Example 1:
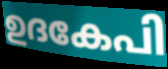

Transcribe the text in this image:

ഉദകേപി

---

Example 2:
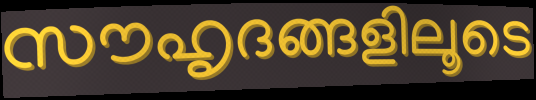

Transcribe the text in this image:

സൗഹൃദങ്ങളിലൂടെ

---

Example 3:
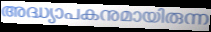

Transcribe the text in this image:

അദ്ധ്യാപകനുമായിരുന്ന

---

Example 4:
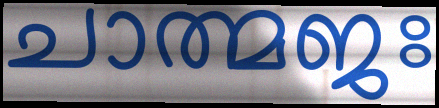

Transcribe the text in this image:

ചാത്മജഃ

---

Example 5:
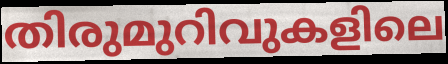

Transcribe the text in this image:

തിരുമുറിവുകളിലെ